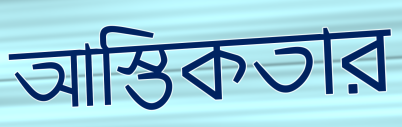
আস্তিকতার